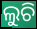
ଲୁଚି